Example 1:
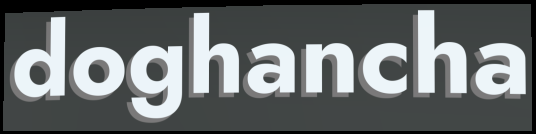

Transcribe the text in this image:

doghancha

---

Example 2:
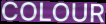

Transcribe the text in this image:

COLOUR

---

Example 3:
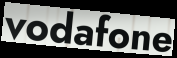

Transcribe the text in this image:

vodafone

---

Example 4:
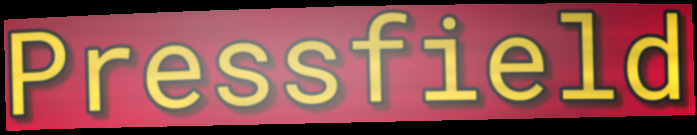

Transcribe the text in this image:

Pressfield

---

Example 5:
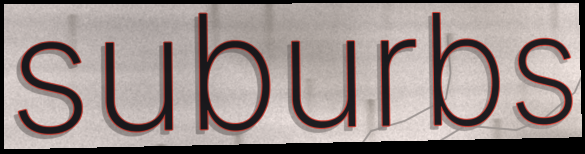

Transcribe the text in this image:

suburbs